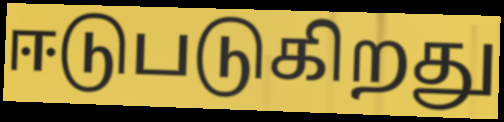
ஈடுபடுகிறது